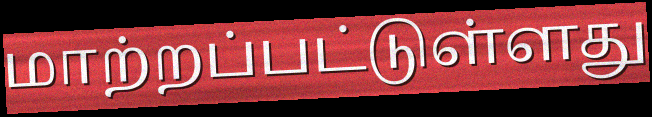
மாற்றப்பட்டுள்ளது